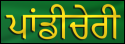
ਪਾਂਡੀਚੇਰੀ